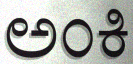
ಅಂಕಿ